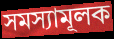
সমস্যামূলক